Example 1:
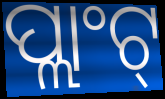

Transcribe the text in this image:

ପ୍ଲାଂଟ୍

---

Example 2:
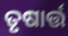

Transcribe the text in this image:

ତୃଷାର୍ତ୍ତ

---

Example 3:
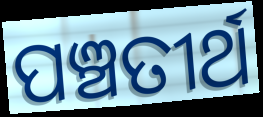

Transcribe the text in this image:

ପଞ୍ଚତୀର୍ଥ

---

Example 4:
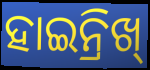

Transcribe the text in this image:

ହାଇନ୍ରିଖ୍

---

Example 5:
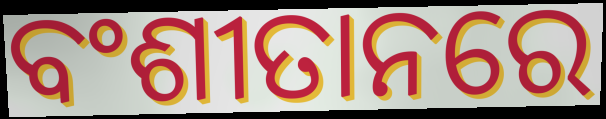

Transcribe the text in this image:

ବଂଶୀତାନରେ